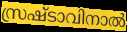
സ്രഷ്ടാവിനാൽ